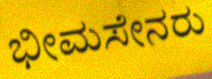
ಭೀಮಸೇನರು